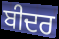
ਬੀਦਰ